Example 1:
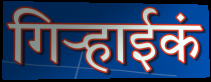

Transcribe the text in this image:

गिऱ्हाईकं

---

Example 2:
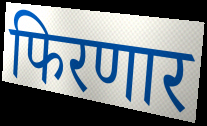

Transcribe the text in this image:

फिरणार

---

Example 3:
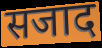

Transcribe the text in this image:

सजाद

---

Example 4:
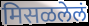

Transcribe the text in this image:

मिसळलेलं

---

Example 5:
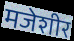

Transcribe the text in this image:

मजेशीर